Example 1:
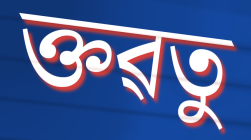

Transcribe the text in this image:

ক্তৱতু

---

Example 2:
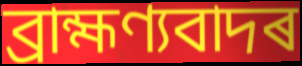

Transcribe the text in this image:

ব্ৰাহ্মণ্যবাদৰ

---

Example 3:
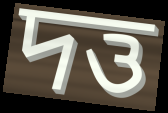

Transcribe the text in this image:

দত্ত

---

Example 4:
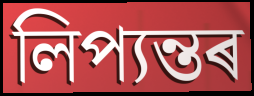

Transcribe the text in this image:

লিপ্যন্তৰ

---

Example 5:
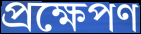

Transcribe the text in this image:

প্ৰক্ষেপণ